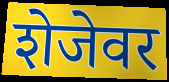
शेजेवर